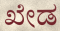
ಖೇಡ